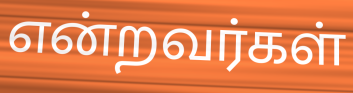
என்றவர்கள்